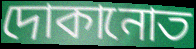
দোকানোত